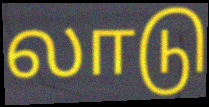
லாடு